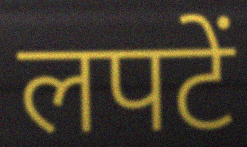
लपटें